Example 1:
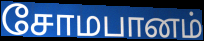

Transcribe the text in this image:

சோமபானம்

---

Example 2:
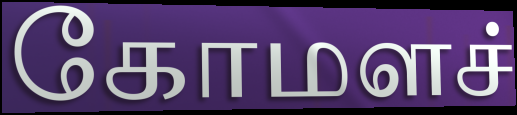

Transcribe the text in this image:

கோமளச்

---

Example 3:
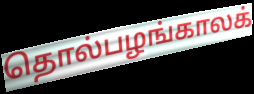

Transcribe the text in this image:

தொல்பழங்காலக்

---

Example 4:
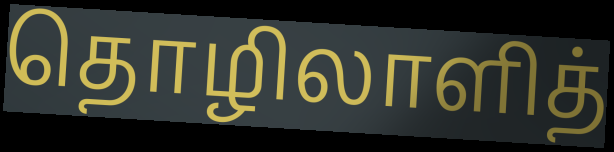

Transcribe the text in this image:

தொழிலாளித்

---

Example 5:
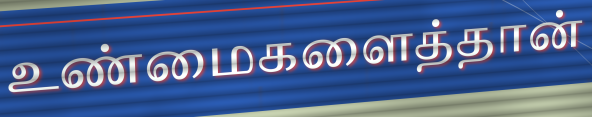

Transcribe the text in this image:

உண்மைகளைத்தான்